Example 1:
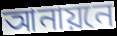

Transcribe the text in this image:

আনায়নে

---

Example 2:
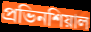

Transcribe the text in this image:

প্রভিনশিয়াল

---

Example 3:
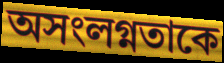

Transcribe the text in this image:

অসংলগ্নতাকে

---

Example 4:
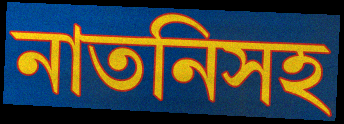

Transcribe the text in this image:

নাতনিসহ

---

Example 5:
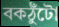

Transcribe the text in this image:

বকঠুঁটো